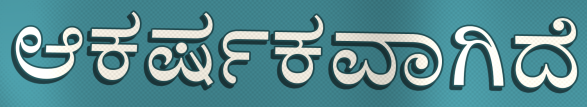
ಆಕರ್ಷಕವಾಗಿದೆ